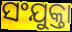
ସଂଯୁକ୍ତା